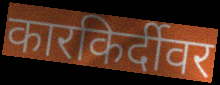
कारकिर्दीवर